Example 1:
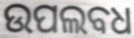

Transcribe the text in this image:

ଉପଲବଧ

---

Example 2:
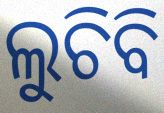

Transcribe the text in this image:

ଲୁଚିବି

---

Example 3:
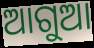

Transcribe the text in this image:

ଆଗୁଆ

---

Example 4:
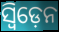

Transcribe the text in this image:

ସ୍ବିଡ଼େନ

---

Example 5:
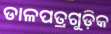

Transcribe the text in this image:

ଡାଳପତ୍ରଗୁଡ଼ିକ